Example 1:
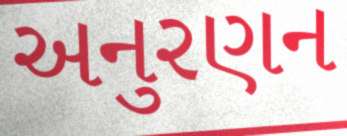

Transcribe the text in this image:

અનુરણન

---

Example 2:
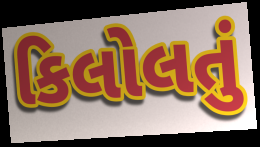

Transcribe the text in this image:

કિલોલતું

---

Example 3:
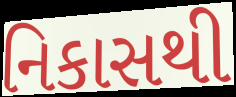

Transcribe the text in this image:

નિકાસથી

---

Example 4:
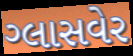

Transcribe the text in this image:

ગ્લાસવેર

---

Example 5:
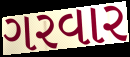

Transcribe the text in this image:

ગરવાર